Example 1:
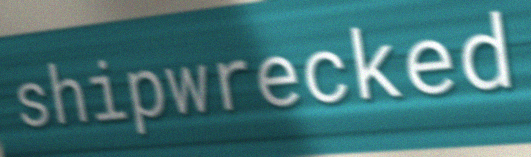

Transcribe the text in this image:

shipwrecked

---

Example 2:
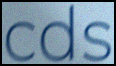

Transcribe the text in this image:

cds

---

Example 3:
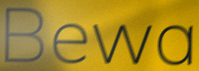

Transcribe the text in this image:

Bewa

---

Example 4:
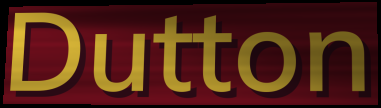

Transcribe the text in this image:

Dutton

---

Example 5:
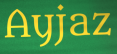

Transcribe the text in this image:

Ayjaz